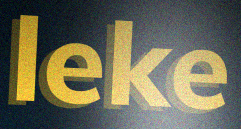
leke